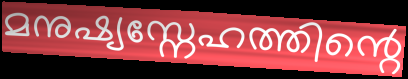
മനുഷ്യസ്നേഹത്തിന്റെ